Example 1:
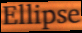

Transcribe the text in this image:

Ellipse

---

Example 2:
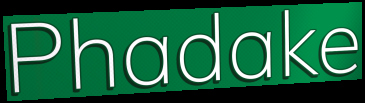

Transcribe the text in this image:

Phadake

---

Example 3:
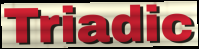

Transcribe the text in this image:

Triadic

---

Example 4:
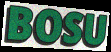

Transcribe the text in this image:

BOSU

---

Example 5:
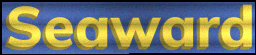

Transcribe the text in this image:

Seaward